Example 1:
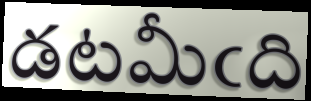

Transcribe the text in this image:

డటమీఁది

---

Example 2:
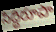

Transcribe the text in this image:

సిద్ధిరూపా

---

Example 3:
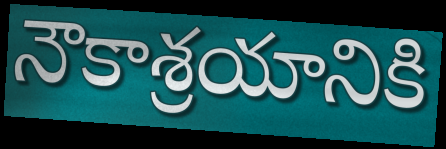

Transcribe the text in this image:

నౌకాశ్రయానికి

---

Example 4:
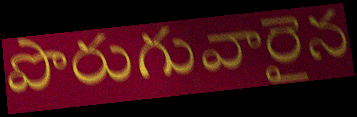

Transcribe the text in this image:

పొరుగువారైన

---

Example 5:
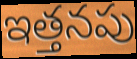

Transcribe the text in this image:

ఇత్తనపు